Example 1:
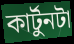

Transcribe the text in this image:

কার্টুনটা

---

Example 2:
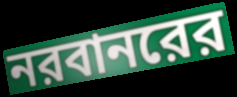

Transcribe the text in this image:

নরবানরের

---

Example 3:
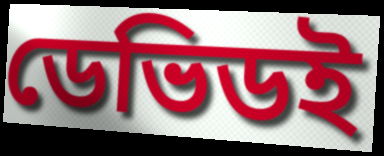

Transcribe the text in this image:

ডেভিডই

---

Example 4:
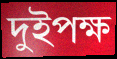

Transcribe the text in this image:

দুইপক্ষ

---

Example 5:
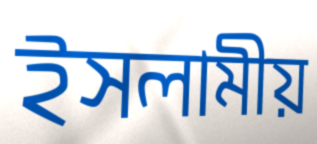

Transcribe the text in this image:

ইসলামীয়